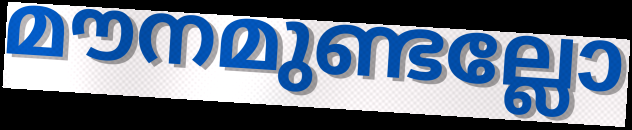
മൗനമുണ്ടല്ലോ